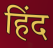
हिंद